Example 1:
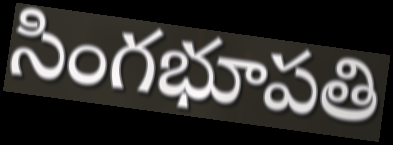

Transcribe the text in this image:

సింగభూపతి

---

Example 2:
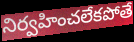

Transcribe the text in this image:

నిర్వహించలేకపోతే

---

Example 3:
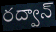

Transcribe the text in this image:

రద్వాన్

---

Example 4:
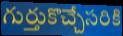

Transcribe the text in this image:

గుర్తుకొచ్చేసరికి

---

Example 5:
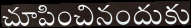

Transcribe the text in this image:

చూపించినందుకు